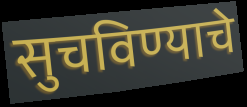
सुचविण्याचे